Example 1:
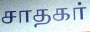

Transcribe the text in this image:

சாதகர்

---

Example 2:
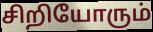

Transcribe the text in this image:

சிறியோரும்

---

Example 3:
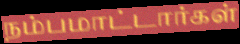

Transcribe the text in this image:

நம்பமாட்டார்கள்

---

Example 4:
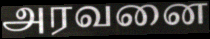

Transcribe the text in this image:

அரவனை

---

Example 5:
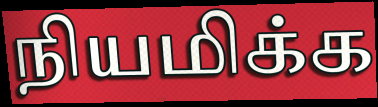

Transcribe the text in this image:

நியமிக்க